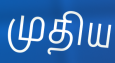
முதிய